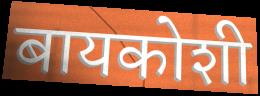
बायकोशी